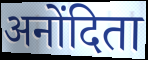
अनोंदिता